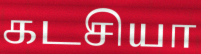
கடசியா